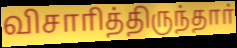
விசாரித்திருந்தார்